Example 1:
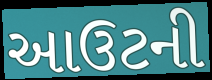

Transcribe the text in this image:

આઉટની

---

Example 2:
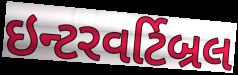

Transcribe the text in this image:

ઇન્ટરવર્ટિબ્રલ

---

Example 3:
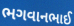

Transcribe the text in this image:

ભગવાનભાઈ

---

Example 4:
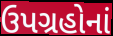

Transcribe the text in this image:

ઉપગ્રહોનાં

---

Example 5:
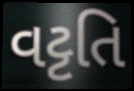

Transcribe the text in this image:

વટ્ટતિ